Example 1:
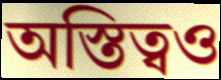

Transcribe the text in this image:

অস্তিত্বও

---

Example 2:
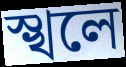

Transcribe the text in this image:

স্খলে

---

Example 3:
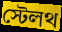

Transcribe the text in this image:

স্টেলথ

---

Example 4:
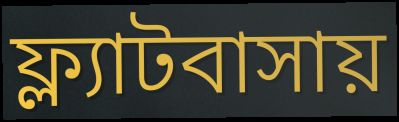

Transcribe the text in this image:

ফ্ল্যাটবাসায়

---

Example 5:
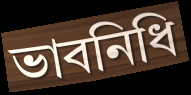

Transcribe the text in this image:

ভাবনিধি